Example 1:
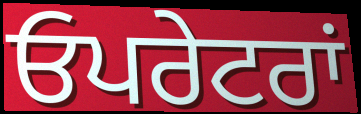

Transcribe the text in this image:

ਓਪਰੇਟਰਾਂ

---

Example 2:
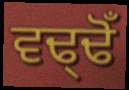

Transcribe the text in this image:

ਵਢ੍ਢੋਁ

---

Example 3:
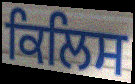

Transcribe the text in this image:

ਕਿਲਿਸ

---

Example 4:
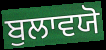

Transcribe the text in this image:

ਬੁਲਾਵਯੋ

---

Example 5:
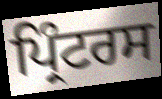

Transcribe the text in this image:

ਪ੍ਰਿੰਟਰਸ